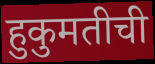
हुकुमतीची